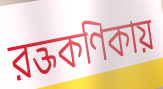
রক্তকণিকায়